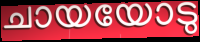
ചായയോടു